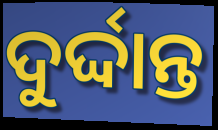
ଦୁର୍ଦ୍ଦାନ୍ତ